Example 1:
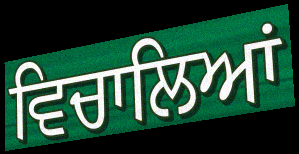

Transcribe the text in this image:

ਵਿਚਾਲਿਆਂ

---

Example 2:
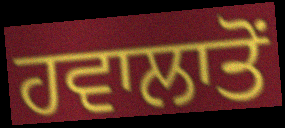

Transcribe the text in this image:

ਹਵਾਲਾਤੋਂ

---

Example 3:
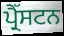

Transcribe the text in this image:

ਪ੍ਰੈੱਸਟਨ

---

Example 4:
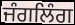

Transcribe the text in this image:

ਜੰਗਲਿੰਗ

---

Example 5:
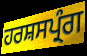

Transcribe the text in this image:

ਹਰਸ਼ਸਪ੍ਰੰਗ